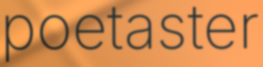
poetaster